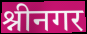
श्नीनगर